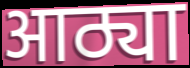
आठ्या